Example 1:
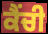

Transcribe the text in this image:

ਕੈਂਚੀ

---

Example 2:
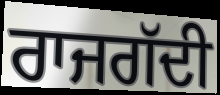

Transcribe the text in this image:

ਰਾਜਗੱਦੀ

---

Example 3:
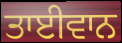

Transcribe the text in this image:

ਤਾਈਵਾਨ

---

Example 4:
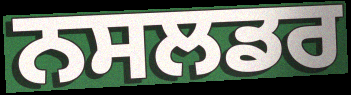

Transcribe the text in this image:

ਨਸਲਡਰ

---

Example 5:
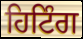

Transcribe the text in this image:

ਹਿਟਿੰਗ